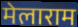
मेलाराम